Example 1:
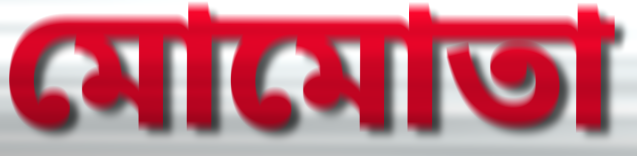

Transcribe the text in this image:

মোমোতা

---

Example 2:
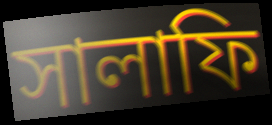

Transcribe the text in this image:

সালাফি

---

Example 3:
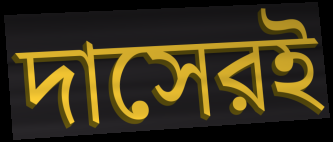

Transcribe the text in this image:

দাসেরই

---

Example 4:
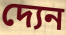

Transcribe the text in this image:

দ্যেন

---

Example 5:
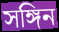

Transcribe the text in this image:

সঙ্গিন